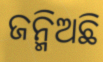
ଜନ୍ମିଅଛି